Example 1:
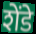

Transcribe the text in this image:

शेंडे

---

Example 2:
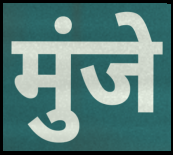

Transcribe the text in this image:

मुंजे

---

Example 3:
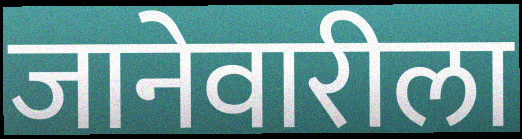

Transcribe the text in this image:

जानेवारीला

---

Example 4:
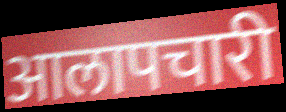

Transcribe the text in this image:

आलापचारी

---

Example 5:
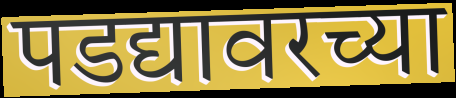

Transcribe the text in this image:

पडद्यावरच्या